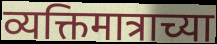
व्यक्तिमात्राच्या